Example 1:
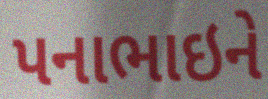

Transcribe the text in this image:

પનાભાઇને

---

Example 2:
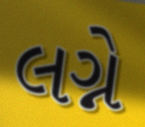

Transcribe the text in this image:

લગ્ને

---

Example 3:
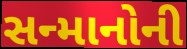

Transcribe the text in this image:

સન્માનોની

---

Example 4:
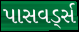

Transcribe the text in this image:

પાસવર્ડ્સ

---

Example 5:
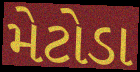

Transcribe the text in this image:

મેટોડા